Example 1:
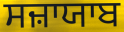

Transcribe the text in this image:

ਸਜ਼ਾਯਾਬ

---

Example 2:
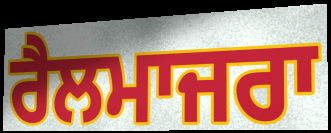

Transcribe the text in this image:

ਰੈਲਮਾਜਰਾ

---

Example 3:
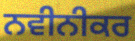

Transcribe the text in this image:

ਨਵੀਨੀਕਰ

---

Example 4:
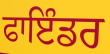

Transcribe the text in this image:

ਫਾਇੰਡਰ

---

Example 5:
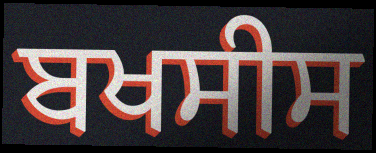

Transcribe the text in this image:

ਬਖਸੀਸ